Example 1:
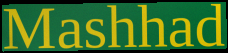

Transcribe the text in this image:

Mashhad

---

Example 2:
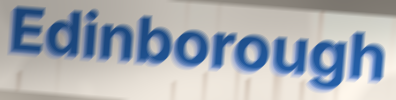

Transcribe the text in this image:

Edinborough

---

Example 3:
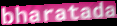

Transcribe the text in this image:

bharatada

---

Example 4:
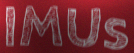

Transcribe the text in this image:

IMUs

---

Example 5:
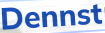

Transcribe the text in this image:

Dennst